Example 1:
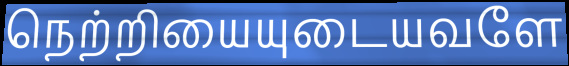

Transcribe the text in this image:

நெற்றியையுடையவளே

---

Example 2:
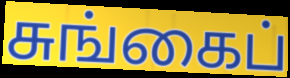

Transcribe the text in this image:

சுங்கைப்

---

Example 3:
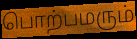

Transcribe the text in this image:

பொற்பமரும்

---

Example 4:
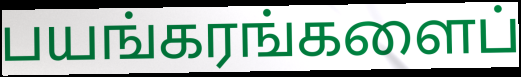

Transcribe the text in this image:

பயங்கரங்களைப்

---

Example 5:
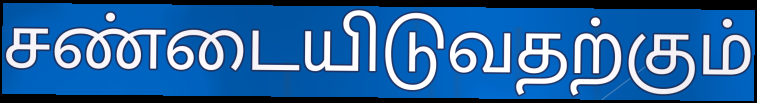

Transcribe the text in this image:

சண்டையிடுவதற்கும்